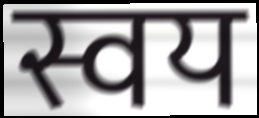
स्वय